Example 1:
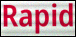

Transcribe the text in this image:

Rapid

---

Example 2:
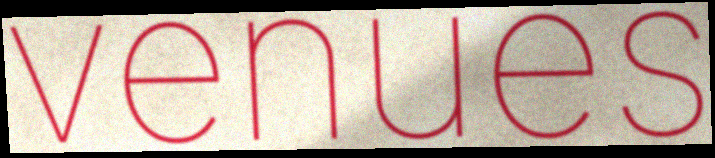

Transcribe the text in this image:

venues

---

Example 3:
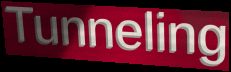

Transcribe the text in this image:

Tunneling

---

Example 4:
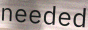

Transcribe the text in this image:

needed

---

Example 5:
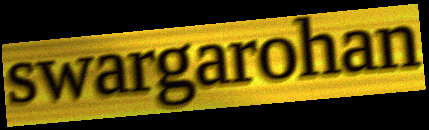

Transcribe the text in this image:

swargarohan